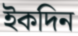
ইকদিন